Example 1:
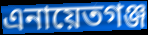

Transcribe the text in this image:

এনায়েতগঞ্জ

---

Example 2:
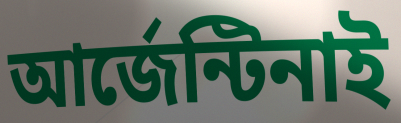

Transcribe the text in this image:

আর্জেন্টিনাই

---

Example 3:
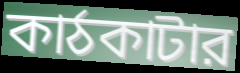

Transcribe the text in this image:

কাঠকাটার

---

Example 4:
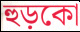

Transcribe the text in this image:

হুড়কো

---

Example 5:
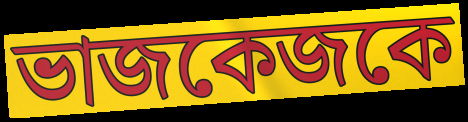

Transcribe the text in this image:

ভাজকেজকে